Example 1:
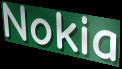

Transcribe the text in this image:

Nokia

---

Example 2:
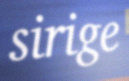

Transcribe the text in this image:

sirige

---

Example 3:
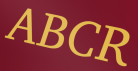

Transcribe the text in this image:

ABCR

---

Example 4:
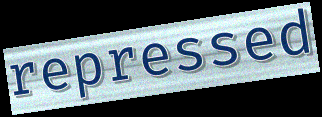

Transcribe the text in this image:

repressed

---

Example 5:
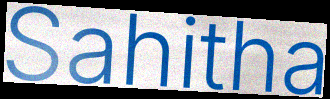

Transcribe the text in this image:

Sahitha